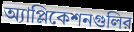
অ্যাপ্লিকেশনগুলির